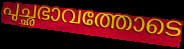
പുച്ഛഭാവത്തോടെ